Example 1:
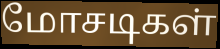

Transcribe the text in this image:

மோசடிகள்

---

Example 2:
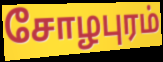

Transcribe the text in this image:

சோழபுரம்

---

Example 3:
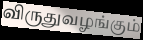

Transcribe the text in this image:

விருதுவழங்கும்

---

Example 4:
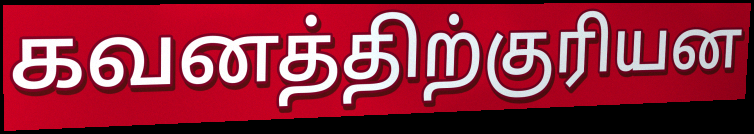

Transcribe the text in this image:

கவனத்திற்குரியன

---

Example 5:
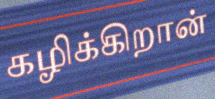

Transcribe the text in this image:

கழிக்கிறான்